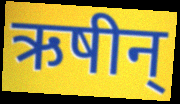
ऋषीन्